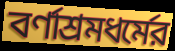
বর্ণাশ্রমধর্মের